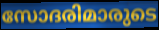
സോദരിമാരുടെ